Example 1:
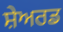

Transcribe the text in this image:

ਸ਼ੇਅਰਡ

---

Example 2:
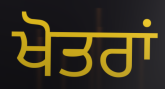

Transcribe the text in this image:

ਖੋਤਰਾਂ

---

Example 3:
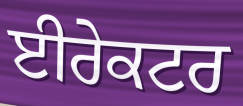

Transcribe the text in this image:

ਈਰੇਕਟਰ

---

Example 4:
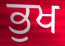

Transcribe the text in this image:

ਭੁਖ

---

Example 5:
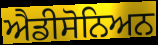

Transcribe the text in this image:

ਐਡੀਸੋਨਿਅਨ